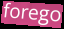
forego